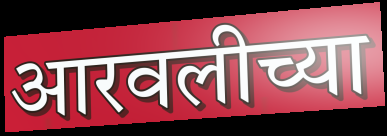
आरवलीच्या